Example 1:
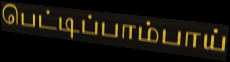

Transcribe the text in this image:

பெட்டிப்பாம்பாய்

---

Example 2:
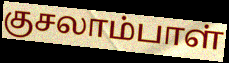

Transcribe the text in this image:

குசலாம்பாள்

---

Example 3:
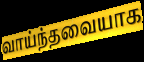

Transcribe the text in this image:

வாய்ந்தவையாக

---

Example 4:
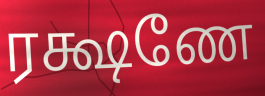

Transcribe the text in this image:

ரக்ஷணே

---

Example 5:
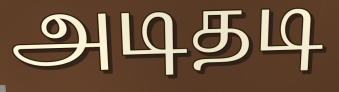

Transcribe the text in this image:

அடிதடி